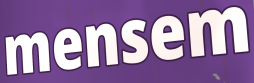
mensem